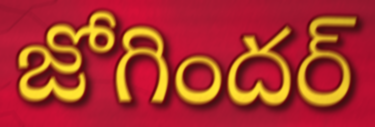
జోగిందర్